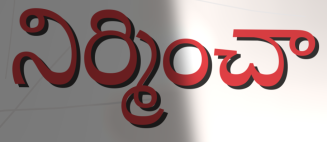
నిర్మించా